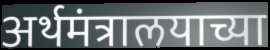
अर्थमंत्रालयाच्या